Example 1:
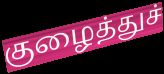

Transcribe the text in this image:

குழைத்துச்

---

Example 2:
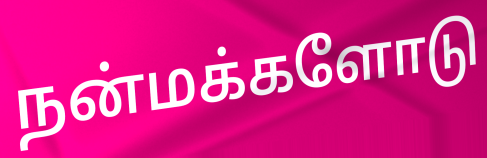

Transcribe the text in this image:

நன்மக்களோடு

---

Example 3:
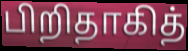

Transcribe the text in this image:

பிறிதாகித்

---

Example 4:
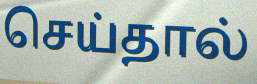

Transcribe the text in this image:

செய்தால்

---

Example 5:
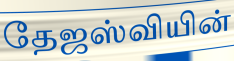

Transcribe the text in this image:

தேஜஸ்வியின்